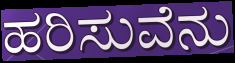
ಹರಿಸುವೆನು